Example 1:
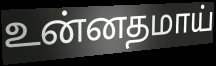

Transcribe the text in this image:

உன்னதமாய்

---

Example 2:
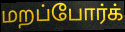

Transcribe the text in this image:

மறப்போர்க்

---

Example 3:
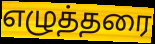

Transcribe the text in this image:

எழுத்தரை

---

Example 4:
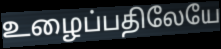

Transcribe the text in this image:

உழைப்பதிலேயே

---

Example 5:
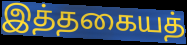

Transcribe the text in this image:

இத்தகையத்